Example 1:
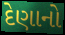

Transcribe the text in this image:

દેણાનો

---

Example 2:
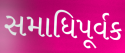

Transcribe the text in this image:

સમાધિપૂર્વક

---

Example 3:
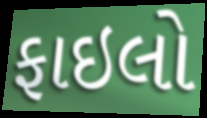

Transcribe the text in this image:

ફાઇલો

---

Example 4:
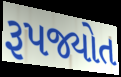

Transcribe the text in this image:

રૂપજ્યોત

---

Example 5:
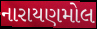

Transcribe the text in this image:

નારાયણમોલ